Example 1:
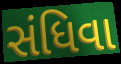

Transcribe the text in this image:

સંધિવા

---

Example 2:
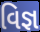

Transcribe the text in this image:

વિજ્ઞ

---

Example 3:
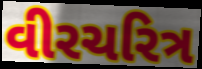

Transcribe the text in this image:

વીરચરિત્ર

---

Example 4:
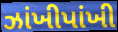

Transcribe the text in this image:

ઝાંખીપાંખી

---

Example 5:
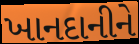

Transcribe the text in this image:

ખાનદાનીને